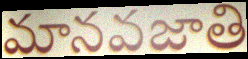
మానవజాతి